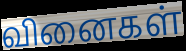
வினைகள்